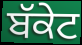
ਬੱਕੇਟ